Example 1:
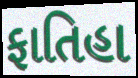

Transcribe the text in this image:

ફાતિહા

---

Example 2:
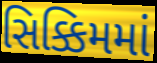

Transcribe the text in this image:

સિક્કિમમાં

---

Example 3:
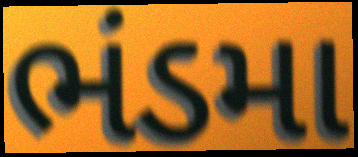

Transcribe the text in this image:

ભંડમા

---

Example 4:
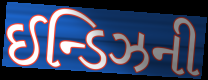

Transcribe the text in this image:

ઈન્ડિઝની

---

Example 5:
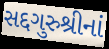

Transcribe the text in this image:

સદ્દગુરુશ્રીનાં